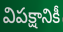
విపక్షానికీ